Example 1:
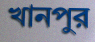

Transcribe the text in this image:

খানপুর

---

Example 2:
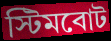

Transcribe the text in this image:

স্টিমবোট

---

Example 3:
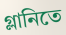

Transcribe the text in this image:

গ্লানিতে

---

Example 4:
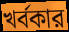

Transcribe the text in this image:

খর্বকার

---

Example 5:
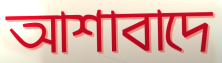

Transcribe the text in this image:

আশাবাদে